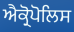
ਐਕ੍ਰੋਪੋਲਿਸ